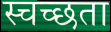
स्चच्छता